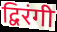
द्विरंगी